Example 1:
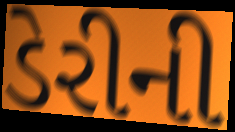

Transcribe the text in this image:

ડેરીની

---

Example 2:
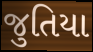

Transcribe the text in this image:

જુતિયા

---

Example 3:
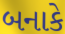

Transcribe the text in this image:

બનાકે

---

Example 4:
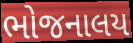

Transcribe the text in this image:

ભોજનાલય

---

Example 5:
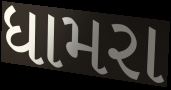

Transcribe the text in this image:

ધામરા